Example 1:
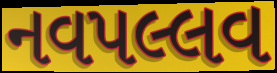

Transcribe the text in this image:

નવપલ્લવ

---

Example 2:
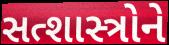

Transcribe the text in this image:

સત્શાસ્ત્રોને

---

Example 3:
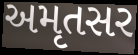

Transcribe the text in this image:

અમૃતસર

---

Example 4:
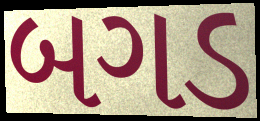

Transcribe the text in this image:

બગડ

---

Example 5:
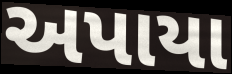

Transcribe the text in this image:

અપાયા